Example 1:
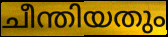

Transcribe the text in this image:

ചീന്തിയതും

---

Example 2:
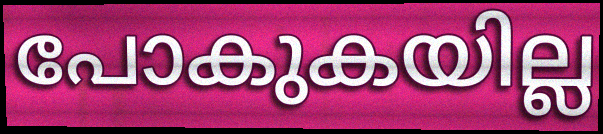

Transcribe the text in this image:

പോകുകയില്ല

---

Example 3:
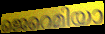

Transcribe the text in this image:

ജെറെമിയാ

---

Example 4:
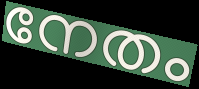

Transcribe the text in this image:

നേതം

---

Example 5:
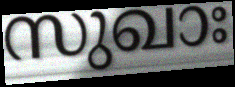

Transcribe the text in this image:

സുഖാഃ